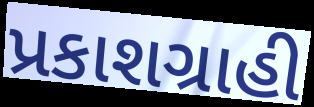
પ્રકાશગ્રાહી